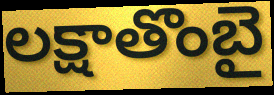
లక్షాతొంబై